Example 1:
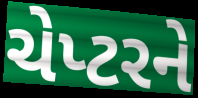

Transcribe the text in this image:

ચેપ્ટરને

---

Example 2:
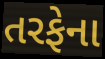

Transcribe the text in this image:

તરફેના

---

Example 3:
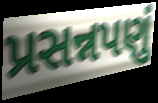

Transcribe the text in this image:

પ્રસન્નપણું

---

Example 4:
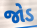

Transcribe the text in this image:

જોડ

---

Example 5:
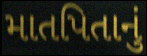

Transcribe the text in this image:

માતપિતાનું